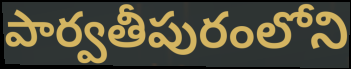
పార్వతీపురంలోని